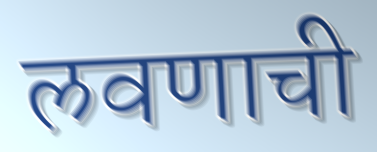
लवणाची